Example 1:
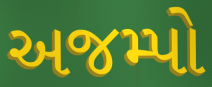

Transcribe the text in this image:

અજમ્પો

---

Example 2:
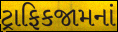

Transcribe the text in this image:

ટ્રાફિકજામનાં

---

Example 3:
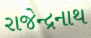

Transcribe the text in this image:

રાજેન્દ્રનાથ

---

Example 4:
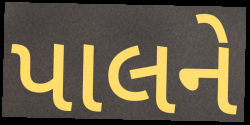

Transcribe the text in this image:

પાલને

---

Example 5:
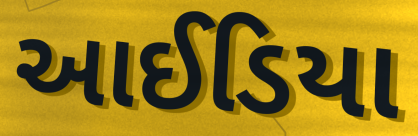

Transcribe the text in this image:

આઈડિયા